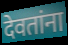
देवतांना